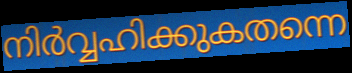
നിർവ്വഹിക്കുകതന്നെ